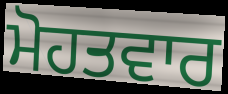
ਮੋਹਤਵਾਰ